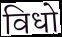
विधो